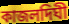
কাজলদিঘী